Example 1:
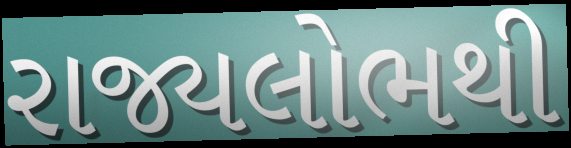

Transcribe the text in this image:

રાજ્યલોભથી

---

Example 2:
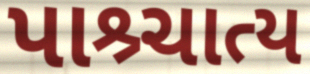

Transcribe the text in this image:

પાશ્ર્ચાત્ય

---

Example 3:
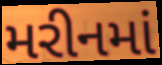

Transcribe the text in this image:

મરીનમાં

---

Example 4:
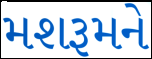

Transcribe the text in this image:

મશરૂમને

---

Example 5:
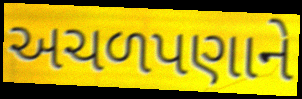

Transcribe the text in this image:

અચળપણાને